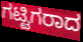
ಗಟ್ಟಿಗರಾದ